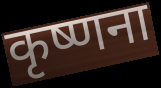
कृष्णना